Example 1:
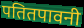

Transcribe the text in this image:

पतितपावनी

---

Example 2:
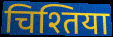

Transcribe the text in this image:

चिश्तिया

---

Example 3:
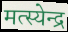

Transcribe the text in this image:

मत्स्येन्द्र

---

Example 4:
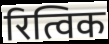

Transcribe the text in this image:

रित्विक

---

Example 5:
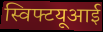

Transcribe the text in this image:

स्विफ्टयूआई